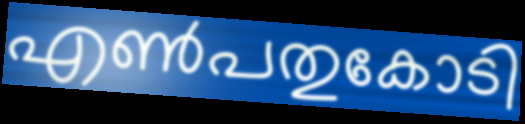
എൺപതുകോടി